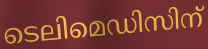
ടെലിമെഡിസിന്